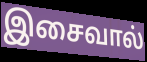
இசைவால்